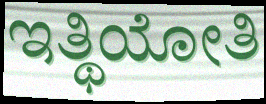
ಇತ್ಥಿಯೋತಿ